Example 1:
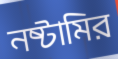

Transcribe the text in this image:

নষ্টামির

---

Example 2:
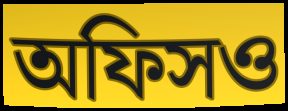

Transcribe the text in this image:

অফিসও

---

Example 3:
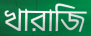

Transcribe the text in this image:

খারাজি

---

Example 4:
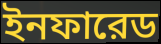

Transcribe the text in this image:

ইনফারেড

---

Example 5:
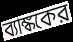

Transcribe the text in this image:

ব্যাঙ্ককের